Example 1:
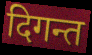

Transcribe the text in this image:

दिगन्त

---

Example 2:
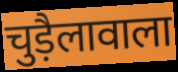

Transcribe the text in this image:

चुड़ैलावाला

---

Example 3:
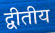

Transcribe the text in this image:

द्वीतीय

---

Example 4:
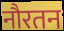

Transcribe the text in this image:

नौरतन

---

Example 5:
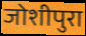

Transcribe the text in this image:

जोशीपुरा